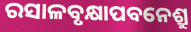
ରସାଳବୃକ୍ଷାପବନେଶ୍ରୁ